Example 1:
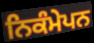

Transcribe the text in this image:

ਨਿਕੰਮੇਪਨ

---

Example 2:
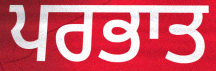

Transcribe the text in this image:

ਪਰਭਾਤ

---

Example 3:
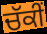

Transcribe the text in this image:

ਚੱਕੀਂ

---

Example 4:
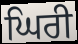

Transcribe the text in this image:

ਘਿਰੀ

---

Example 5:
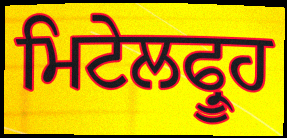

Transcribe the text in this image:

ਮਿਟੇਲਫ੍ਰੂਹ